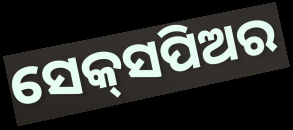
ସେକ୍‌ସପିଅର